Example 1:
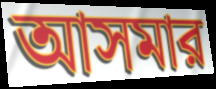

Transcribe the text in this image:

আসমার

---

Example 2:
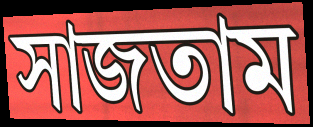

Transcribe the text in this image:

সাজতাম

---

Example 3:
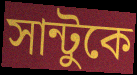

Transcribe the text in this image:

সান্টুকে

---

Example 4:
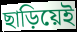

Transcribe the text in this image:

ছাড়িয়েই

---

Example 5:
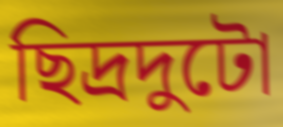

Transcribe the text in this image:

ছিদ্রদুটো